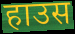
हाउस